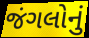
જંગલોનું